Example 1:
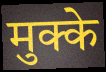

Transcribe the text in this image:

मुक्के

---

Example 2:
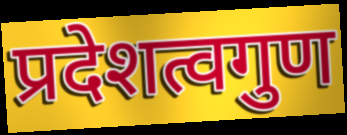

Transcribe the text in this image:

प्रदेशत्वगुण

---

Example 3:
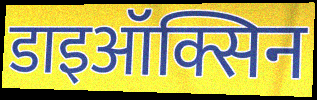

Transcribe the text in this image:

डाइऑक्सिन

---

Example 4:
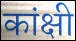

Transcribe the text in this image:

कांक्षी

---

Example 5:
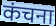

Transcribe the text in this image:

कंचना